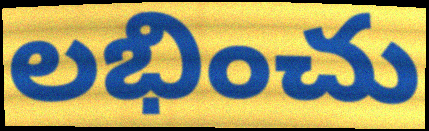
లభించు